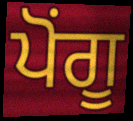
ਪੋਂਗੂ